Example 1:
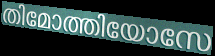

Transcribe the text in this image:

തിമോത്തിയോസേ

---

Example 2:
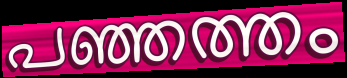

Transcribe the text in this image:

പഞ്ഞത്തം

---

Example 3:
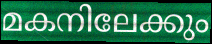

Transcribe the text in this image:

മകനിലേക്കും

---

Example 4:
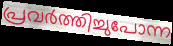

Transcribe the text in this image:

പ്രവർത്തിച്ചുപോന്ന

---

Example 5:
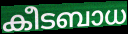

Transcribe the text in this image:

കീടബാധ